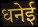
धनेई